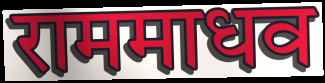
राममाधव